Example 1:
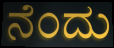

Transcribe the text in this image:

ನೆಂದು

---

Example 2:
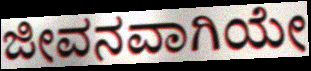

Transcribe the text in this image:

ಜೀವನವಾಗಿಯೇ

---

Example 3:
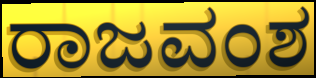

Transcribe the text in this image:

ರಾಜವಂಶ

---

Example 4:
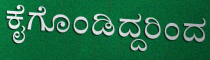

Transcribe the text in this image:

ಕೈಗೊಂಡಿದ್ದರಿಂದ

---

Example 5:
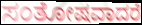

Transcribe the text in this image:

ಸಂತೋಷವಾದರೆ